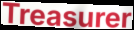
Treasurer